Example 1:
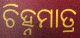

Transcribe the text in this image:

ଚିହ୍ନମାତ୍ର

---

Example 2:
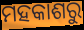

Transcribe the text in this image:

ମହକାଶରୁ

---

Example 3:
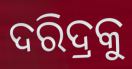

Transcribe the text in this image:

ଦରିଦ୍ରକୁ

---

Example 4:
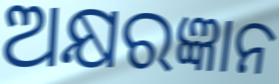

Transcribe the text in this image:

ଅକ୍ଷରଜ୍ଞାନ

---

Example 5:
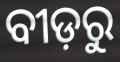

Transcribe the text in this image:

ବୀଡ଼ରୁ